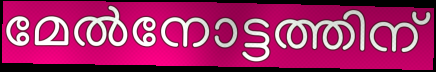
മേൽനോട്ടത്തിന്